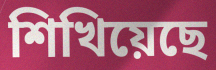
শিখিয়েছে